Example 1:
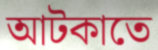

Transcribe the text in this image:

আটকাতে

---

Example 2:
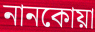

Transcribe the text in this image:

নানকোয়া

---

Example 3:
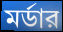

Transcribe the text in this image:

মর্ডার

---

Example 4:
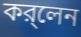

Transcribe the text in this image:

কর্‌লেন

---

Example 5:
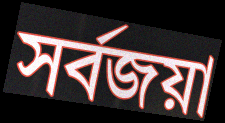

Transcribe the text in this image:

সর্বজয়া